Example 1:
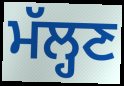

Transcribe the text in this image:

ਮੱਲ੍ਹਣ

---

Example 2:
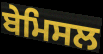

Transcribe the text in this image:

ਬੇਮਿਸਲ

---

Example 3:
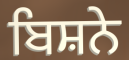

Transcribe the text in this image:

ਬਿਸ਼ਨੇ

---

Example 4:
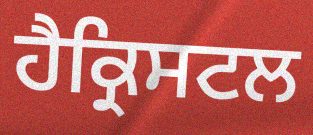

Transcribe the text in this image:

ਹੈਕ੍ਰਿਸਟਲ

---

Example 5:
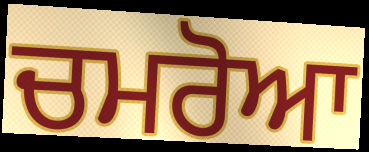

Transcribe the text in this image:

ਚਮਰੋਆ